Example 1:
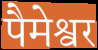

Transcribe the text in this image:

पैमेश्वर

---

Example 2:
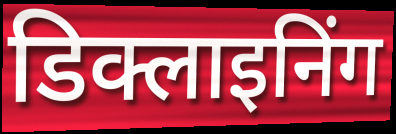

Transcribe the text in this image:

डिक्लाइनिंग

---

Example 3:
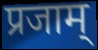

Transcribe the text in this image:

प्रजाम्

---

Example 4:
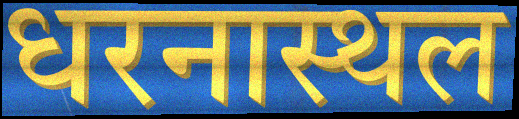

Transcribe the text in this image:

धरनास्थल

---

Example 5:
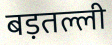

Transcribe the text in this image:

बड़तल्ली